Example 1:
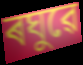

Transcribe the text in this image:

ৰঘুৱে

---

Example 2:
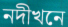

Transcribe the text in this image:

নদীখনে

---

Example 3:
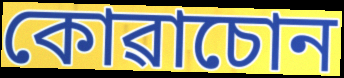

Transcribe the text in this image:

কোৱাচোন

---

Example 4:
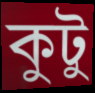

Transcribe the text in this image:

কুটু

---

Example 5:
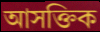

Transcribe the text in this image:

আসক্তিক